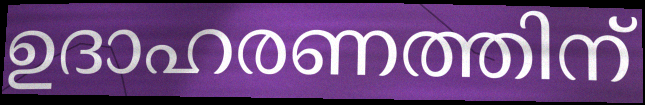
ഉദാഹരണത്തിന്